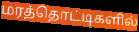
மரத்தொட்டிகளில்